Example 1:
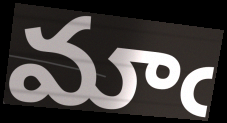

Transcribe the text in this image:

మాఁ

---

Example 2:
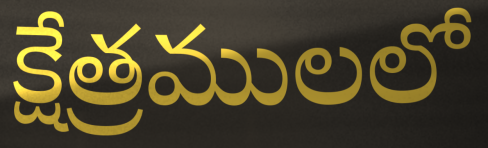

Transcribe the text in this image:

క్షేత్రములలో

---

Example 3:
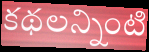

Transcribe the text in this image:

కథలన్నింటి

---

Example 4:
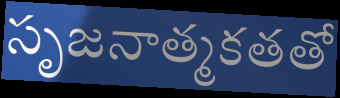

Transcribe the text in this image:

సృజనాత్మకతతో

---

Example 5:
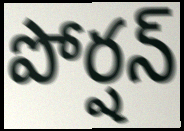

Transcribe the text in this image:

పోర్షన్